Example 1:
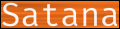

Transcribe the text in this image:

Satana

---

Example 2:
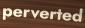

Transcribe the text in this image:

perverted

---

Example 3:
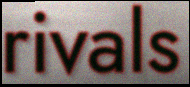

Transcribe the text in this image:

rivals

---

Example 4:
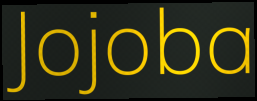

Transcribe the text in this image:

Jojoba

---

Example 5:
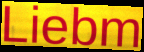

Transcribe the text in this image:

Liebm